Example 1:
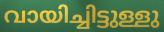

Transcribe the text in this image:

വായിച്ചിട്ടുള്ളു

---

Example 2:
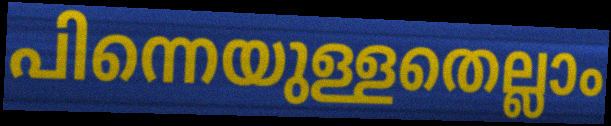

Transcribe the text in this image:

പിന്നെയുള്ളതെല്ലാം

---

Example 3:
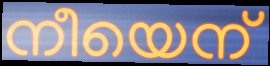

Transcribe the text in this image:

നീയെന്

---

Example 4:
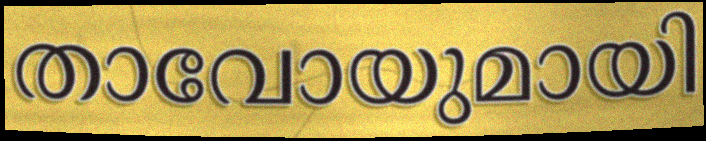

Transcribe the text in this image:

താവോയുമായി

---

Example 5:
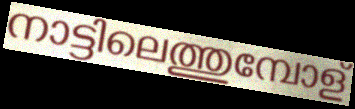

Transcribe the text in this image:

നാട്ടിലെത്തുമ്പോള്